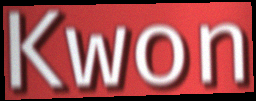
Kwon